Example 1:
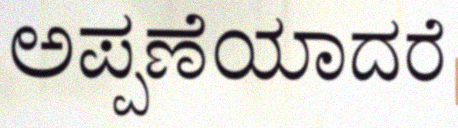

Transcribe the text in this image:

ಅಪ್ಪಣೆಯಾದರೆ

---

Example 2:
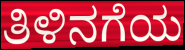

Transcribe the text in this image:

ತಿಳಿನಗೆಯ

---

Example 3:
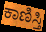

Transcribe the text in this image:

ಕಾಣಿಸ್ತಿ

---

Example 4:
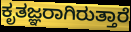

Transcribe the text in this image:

ಕೃತಜ್ಞರಾಗಿರುತ್ತಾರೆ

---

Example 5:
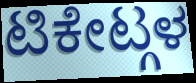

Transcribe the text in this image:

ಟಿಕೇಟ್ಗಳ